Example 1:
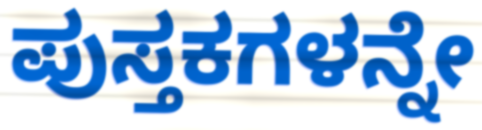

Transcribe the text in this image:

ಪುಸ್ತಕಗಳನ್ನೇ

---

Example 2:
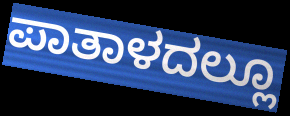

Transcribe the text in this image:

ಪಾತಾಳದಲ್ಲೂ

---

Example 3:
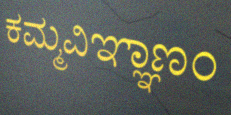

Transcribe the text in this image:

ಕಮ್ಮವಿಞ್ಞಾಣಂ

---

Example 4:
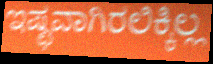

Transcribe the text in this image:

ಇಷ್ಟವಾಗಿರಲಿಕ್ಕಿಲ್ಲ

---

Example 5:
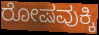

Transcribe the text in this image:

ರೋಷವುಕ್ಕಿ